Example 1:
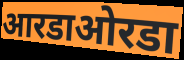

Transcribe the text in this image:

आरडाओरडा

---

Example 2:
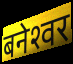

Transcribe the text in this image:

बनेश्वर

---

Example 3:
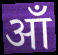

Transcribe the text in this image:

आँ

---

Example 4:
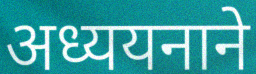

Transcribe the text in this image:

अध्ययनाने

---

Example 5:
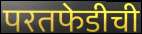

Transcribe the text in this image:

परतफेडीची